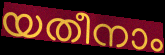
യതീനാം